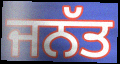
ਜਨੱਤ